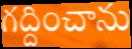
గద్దించాను